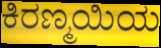
ಕಿರಣ್ಮಯಿಯ